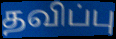
தவிப்பு